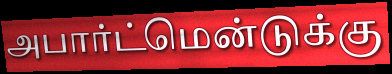
அபார்ட்மென்டுக்கு